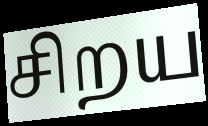
சிறய